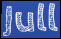
Jull